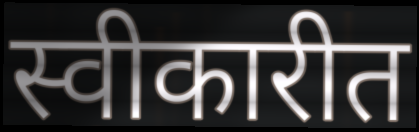
स्वीकारीत